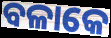
ବଳାକେ